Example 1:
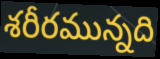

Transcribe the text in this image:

శరీరమున్నది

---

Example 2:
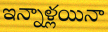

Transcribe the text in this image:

ఇన్నాళ్లయినా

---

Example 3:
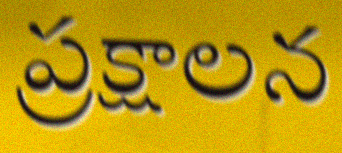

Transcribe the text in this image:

ప్రక్షాలన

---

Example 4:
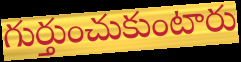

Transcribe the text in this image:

గుర్తుంచుకుంటారు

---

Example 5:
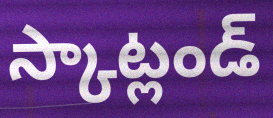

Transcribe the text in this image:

స్కాట్లండ్